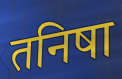
तनिषा